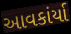
આવકાંર્યા